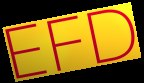
EFD